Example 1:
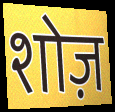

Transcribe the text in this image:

शोज़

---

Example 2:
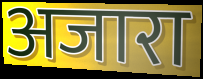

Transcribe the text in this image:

अजारा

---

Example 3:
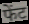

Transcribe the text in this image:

फेंट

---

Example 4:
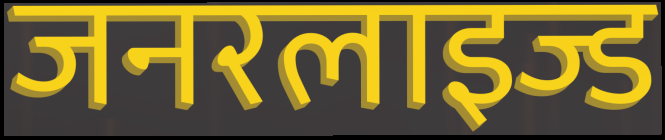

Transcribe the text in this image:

जनरलाइज्ड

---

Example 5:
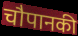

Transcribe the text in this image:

चौपानकी